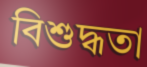
বিশুদ্ধতা